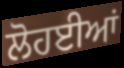
ਲੋਹਈਆਂ